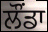
ਲੌਂਡਾ